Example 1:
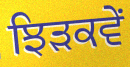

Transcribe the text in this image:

ਝਿੜਕਵੇਂ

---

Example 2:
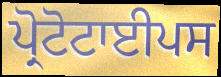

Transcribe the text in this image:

ਪ੍ਰੋਟੋਟਾਈਪਸ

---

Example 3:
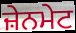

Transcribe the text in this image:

ਜ਼ੇਨਮੇਟ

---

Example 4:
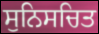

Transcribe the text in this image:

ਸੁਨਿਸਚਿਤ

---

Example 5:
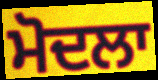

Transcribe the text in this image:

ਮੋਦਲਾ